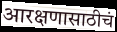
आरक्षणासाठीचं